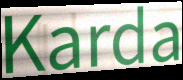
Karda